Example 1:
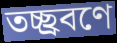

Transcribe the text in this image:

তচ্ছ্রবণে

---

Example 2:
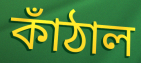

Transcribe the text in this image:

কাঁঠাল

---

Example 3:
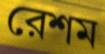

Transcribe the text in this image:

রেশম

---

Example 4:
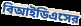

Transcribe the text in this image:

বিআইডিএসের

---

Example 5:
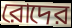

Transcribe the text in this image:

রোদের